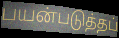
பயன்படுத்தப்